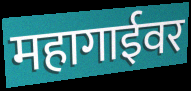
महागाईवर